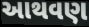
આથવણ